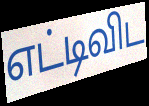
எட்டிவிட